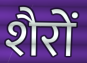
शैरों